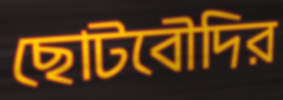
ছোটবৌদির